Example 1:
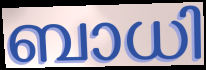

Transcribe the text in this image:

ബാധി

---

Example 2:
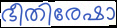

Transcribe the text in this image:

ഭീതിരേഷാ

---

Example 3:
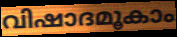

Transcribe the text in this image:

വിഷാദമൂകാം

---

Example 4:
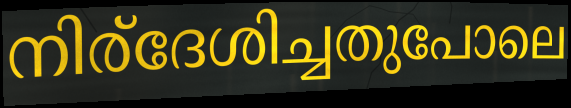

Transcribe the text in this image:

നിര്ദേശിച്ചതുപോലെ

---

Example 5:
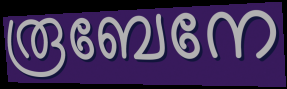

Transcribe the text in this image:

രൂബേനേ